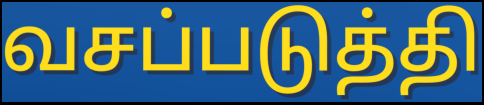
வசப்படுத்தி